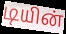
டியின்